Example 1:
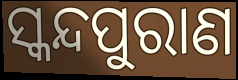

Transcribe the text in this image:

ସ୍କନ୍ଦପୁରାଣ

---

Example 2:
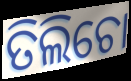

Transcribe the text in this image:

ତିଲିଚୋ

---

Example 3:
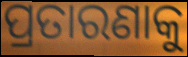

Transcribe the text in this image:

ପ୍ରତାରଣାକୁ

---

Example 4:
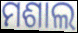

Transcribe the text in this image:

ମଶାଲ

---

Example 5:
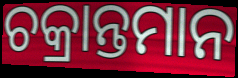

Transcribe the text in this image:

ଚକ୍ରାନ୍ତମାନ